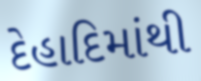
દેહાદિમાંથી